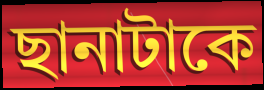
ছানাটাকে